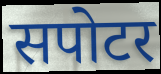
सपोटर